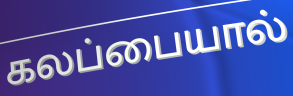
கலப்பையால்